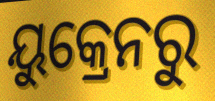
ୟୁକ୍ରେନରୁ